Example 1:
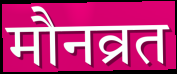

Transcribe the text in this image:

मौनव्रत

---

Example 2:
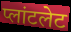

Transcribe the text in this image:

प्लांटलेट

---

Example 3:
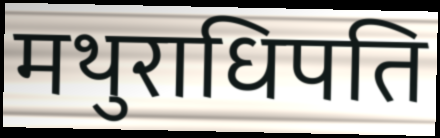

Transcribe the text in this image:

मथुराधिपति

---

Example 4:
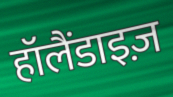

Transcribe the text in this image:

हॉलैंडाइज़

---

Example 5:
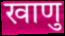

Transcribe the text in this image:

खाणु